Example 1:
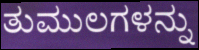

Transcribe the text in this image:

ತುಮುಲಗಳನ್ನು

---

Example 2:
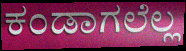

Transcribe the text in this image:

ಕಂಡಾಗಲೆಲ್ಲ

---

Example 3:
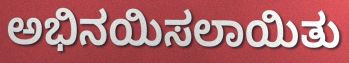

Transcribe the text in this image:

ಅಭಿನಯಿಸಲಾಯಿತು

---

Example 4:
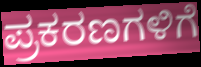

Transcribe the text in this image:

ಪ್ರಕರಣಗಳಿಗೆ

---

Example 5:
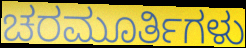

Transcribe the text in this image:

ಚರಮೂರ್ತಿಗಳು